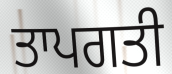
ਤਾਪਗਤੀ